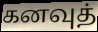
கனவுத்